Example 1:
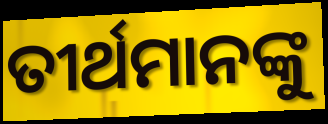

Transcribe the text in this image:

ତୀର୍ଥମାନଙ୍କୁ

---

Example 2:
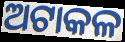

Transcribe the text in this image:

ଅଟାକଳ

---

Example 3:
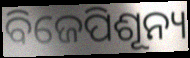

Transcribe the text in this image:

ବିଜେପିଶୂନ୍ୟ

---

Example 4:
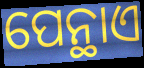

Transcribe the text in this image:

ପେନ୍ଥାଏ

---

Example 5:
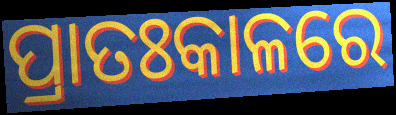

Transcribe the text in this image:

ପ୍ରାତଃକାଳରେ